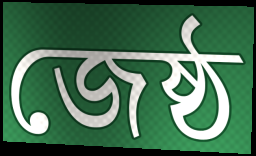
জেষ্ঠ